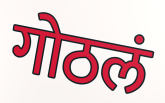
गोठलं